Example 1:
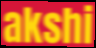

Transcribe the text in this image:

akshi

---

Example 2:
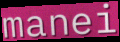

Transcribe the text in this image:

manei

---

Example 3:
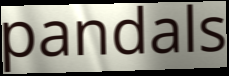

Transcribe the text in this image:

pandals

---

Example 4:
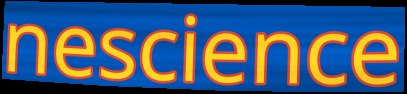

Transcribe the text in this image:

nescience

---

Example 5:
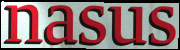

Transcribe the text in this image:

nasus